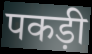
पकड़ी